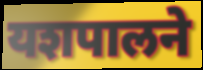
यशपालने